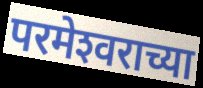
परमेश्‍वराच्या